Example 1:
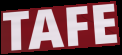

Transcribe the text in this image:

TAFE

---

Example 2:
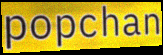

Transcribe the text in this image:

popchan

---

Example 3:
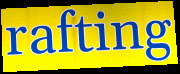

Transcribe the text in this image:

rafting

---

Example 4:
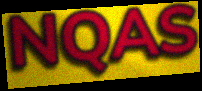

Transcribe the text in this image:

NQAS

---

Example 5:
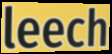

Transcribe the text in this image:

leech